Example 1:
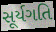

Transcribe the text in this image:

સૂર્યગતિ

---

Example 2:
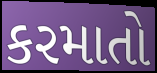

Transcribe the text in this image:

કરમાતો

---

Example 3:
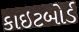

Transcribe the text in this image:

કાઇટબોર્ડ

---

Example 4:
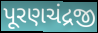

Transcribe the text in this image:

પૂરણચંદ્રજી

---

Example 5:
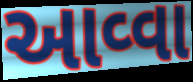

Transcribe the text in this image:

આવ્વા